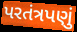
પરતંત્રપણું